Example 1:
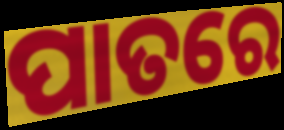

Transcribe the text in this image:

ପାତରେ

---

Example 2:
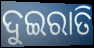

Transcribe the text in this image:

ଦୁଇରାତି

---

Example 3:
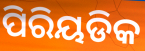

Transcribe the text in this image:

ପିରିୟଡିକ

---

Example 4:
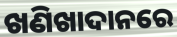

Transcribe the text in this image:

ଖଣିଖାଦାନରେ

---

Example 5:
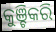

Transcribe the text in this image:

କୁଞ୍ଚିକରି